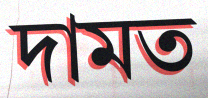
দামত